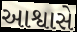
આશ્વાસે